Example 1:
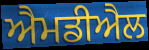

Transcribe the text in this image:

ਐਮਡੀਐਲ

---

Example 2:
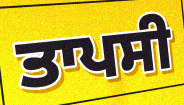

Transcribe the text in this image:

ਤਾਪਸੀ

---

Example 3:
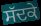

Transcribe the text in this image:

ਸੱਦਕੇ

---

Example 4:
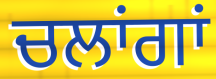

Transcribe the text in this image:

ਚਲਾਂਗਾਂ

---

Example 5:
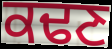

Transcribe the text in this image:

ਕਢਣ